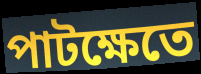
পাটক্ষেতে